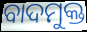
ବାଦମୁକ୍ତ